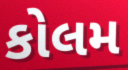
કોલમ